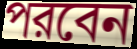
পরবেন